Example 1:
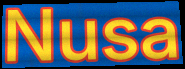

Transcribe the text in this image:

Nusa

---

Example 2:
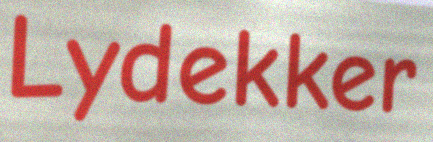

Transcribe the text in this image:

Lydekker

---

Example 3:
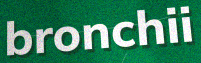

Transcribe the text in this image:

bronchii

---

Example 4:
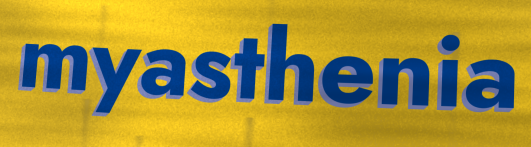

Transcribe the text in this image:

myasthenia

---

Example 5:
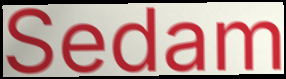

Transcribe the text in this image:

Sedam